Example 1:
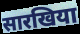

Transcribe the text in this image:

सारखिया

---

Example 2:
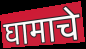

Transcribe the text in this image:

घामाचे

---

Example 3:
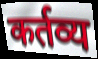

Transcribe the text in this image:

कर्तव्य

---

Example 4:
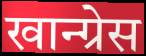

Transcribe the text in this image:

खान्ग्रेस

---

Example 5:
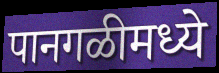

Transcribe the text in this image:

पानगळीमध्ये